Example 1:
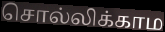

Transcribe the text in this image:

சொல்லிக்காம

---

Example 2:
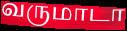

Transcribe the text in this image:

வருமாடா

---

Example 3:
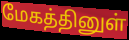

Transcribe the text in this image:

மேகத்தினுள்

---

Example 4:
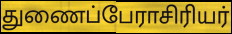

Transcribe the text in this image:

துணைப்பேராசிரியர்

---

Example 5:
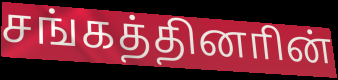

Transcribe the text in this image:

சங்கத்தினரின்